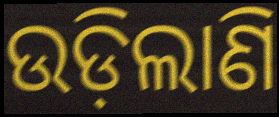
ଉଡ଼ିଲାଣି